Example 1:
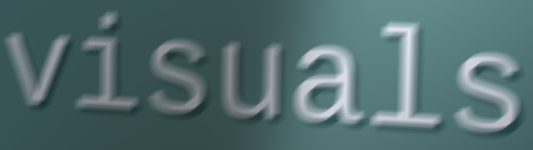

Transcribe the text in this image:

visuals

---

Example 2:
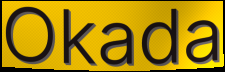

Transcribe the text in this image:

Okada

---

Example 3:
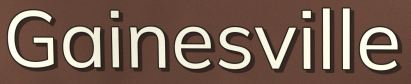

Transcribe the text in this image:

Gainesville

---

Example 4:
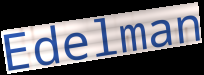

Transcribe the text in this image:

Edelman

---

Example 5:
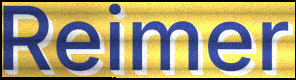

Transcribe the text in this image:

Reimer